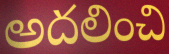
అదలించి